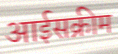
आईसक्रीम